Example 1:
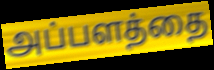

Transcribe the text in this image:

அப்பளத்தை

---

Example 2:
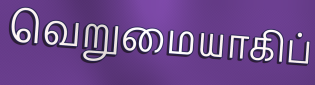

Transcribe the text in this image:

வெறுமையாகிப்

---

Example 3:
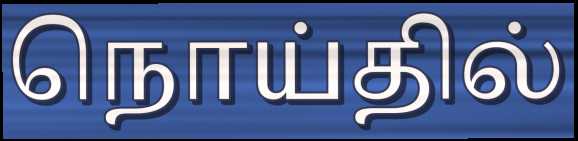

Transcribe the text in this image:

நொய்தில்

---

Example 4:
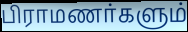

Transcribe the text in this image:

பிராமணர்களும்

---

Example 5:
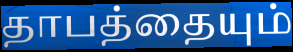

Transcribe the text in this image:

தாபத்தையும்